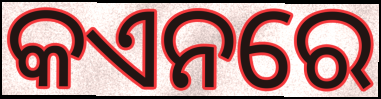
କଏନରେ